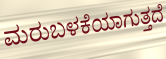
ಮರುಬಳಕೆಯಾಗುತ್ತದೆ